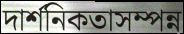
দার্শনিকতাসম্পন্ন